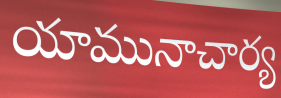
యామునాచార్య